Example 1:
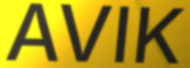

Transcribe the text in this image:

AVIK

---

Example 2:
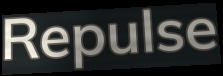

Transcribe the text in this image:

Repulse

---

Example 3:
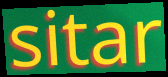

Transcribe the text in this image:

sitar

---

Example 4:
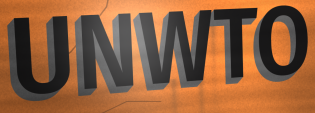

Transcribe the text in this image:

UNWTO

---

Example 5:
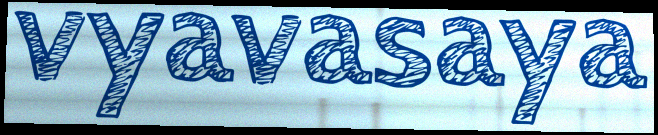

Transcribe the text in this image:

vyavasaya